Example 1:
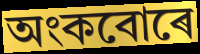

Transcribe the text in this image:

অংকবোৰে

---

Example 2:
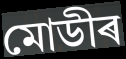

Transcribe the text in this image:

মোডীৰ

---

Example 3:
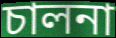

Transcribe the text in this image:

চালনা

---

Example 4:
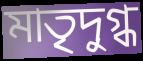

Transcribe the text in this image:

মাতৃদুগ্ধ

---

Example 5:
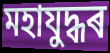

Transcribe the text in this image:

মহাযুদ্ধৰ